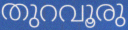
തുറവൂരു